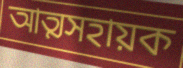
আত্মসহায়ক